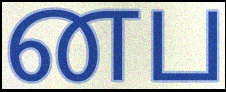
னப